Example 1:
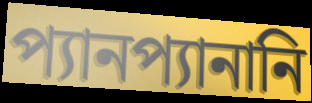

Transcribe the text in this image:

প্যানপ্যানানি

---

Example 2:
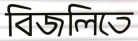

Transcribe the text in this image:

বিজলিতে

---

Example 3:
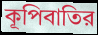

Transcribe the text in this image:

কূপিবাতির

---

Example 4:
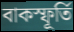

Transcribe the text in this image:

বাকস্ফূর্তি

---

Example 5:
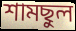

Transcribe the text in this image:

শামছুল